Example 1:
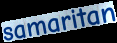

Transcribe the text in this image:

samaritan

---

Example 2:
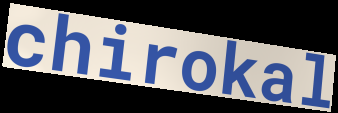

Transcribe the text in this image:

chirokal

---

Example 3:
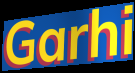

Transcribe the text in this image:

Garhi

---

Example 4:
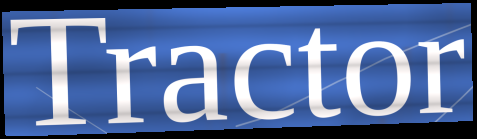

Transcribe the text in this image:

Tractor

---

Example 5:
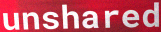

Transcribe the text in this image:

unshared